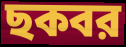
ছকবর